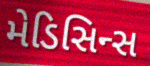
મેડિસિન્સ